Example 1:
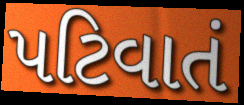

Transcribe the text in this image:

પટિવાતં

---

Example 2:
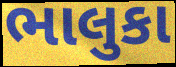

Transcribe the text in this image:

ભાલુકા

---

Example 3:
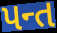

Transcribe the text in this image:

પન્ત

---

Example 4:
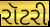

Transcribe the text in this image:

રૉટરી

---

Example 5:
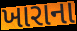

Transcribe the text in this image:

ખારાના